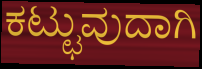
ಕಟ್ಟುವುದಾಗಿ